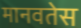
मानवतेस